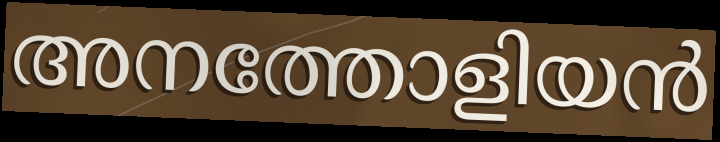
അനത്തോളിയൻ